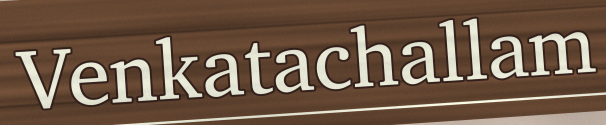
Venkatachallam